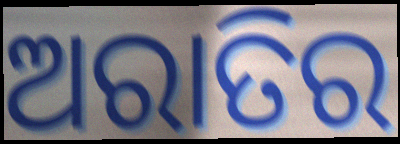
ଅରାତିର